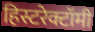
हिस्टरेक्टॉमी